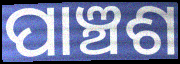
ପାଞ୍ଚଶ